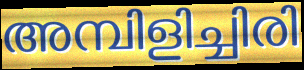
അമ്പിളിച്ചിരി